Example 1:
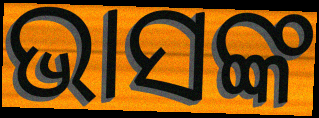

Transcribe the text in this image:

ଭାସଙ୍କ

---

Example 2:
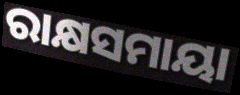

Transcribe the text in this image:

ରାକ୍ଷସମାୟା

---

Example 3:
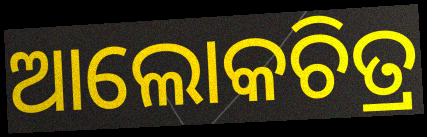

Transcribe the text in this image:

ଆଲୋକଚିତ୍ର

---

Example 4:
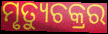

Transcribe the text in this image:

ମୃତ୍ୟୁଚକ୍ରର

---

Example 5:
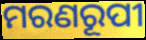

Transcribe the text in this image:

ମରଣରୂପୀ